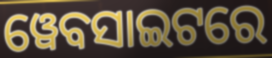
ୱେବସାଇଟରେ